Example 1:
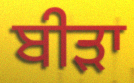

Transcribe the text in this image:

ਬੀੜਾ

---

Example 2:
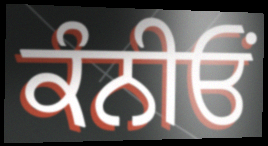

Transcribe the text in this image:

ਕੰਨੀਓਂ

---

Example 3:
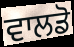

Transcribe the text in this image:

ਵਾਲਡੋ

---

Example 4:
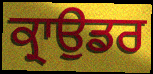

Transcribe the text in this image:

ਕ੍ਰਾਉਡਰ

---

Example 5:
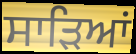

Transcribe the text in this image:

ਸਾੜਿਆਂ